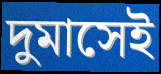
দুমাসেই